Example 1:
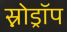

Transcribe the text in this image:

स्नोड्रॉप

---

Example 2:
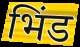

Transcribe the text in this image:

भिंड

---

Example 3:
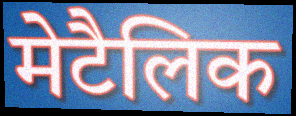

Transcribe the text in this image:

मेटैलिक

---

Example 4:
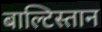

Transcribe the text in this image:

बाल्टिस्तान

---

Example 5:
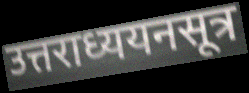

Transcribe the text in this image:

उत्तराध्ययनसूत्र